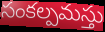
సంకల్పమస్తు